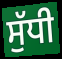
ਸੁੱਧੀ